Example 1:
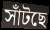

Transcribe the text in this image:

সাঁটছে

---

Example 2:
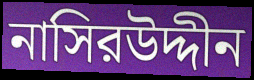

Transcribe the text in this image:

নাসিরউদ্দীন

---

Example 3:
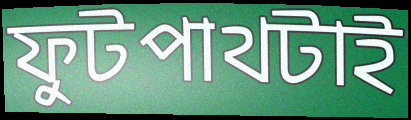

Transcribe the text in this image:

ফুটপাথটাই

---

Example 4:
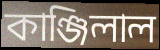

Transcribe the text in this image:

কাঞ্জিলাল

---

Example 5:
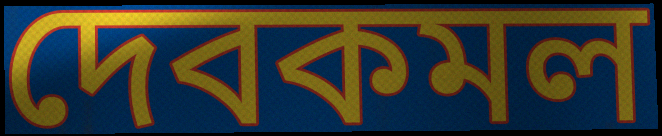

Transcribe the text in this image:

দেবকমল